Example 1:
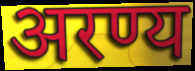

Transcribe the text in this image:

अरण्य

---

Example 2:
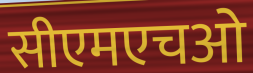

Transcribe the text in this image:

सीएमएचओ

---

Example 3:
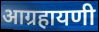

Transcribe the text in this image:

आग्रहायणी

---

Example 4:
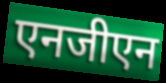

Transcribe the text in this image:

एनजीएन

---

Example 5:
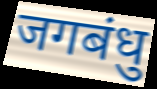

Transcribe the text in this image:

जगबंधु